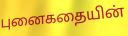
புனைகதையின்